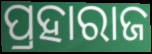
ପ୍ରହାରାଜ